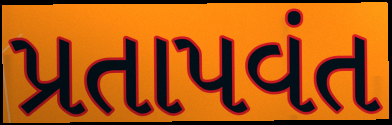
પ્રતાપવંત